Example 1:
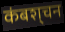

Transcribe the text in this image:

कंबश्चन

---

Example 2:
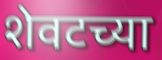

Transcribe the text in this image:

शेवटच्या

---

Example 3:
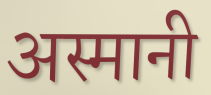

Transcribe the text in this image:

अस्मानी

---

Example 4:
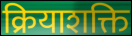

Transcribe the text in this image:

क्रियाशक्ति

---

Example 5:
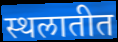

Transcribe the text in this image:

स्थलातीत